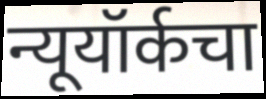
न्यूयॉर्कचा